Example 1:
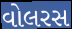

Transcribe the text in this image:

વોલરસ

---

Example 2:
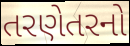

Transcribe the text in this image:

તરણેતરનો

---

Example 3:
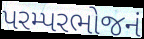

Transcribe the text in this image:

પરમ્પરભોજનં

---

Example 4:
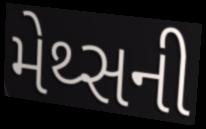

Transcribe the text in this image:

મેથ્સની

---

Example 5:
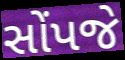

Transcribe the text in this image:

સોંપજે